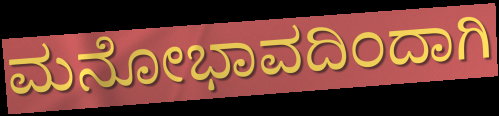
ಮನೋಭಾವದಿಂದಾಗಿ